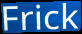
Frick